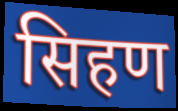
सिहण